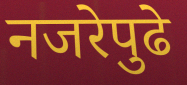
नजरेपुढे